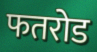
फतरोड